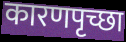
कारणपृच्छा